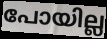
പോയില്ല